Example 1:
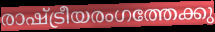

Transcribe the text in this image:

രാഷ്ട്രീയരംഗത്തേക്കു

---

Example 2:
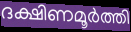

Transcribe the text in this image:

ദക്ഷിണമൂർത്തി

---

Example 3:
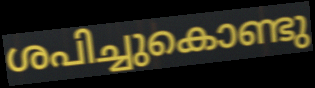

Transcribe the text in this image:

ശപിച്ചുകൊണ്ടു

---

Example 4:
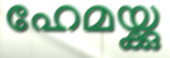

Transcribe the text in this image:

ഹേമയ്ക്കു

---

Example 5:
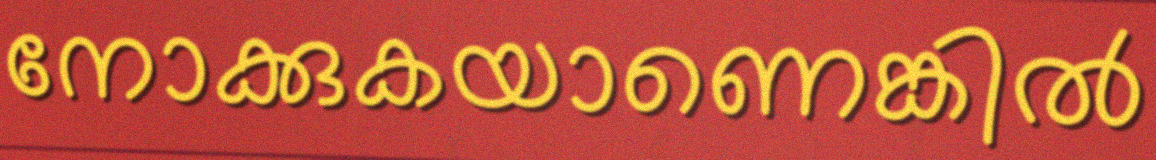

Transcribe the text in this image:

നോക്കുകയാണെങ്കിൽ